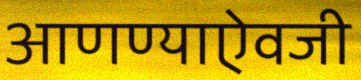
आणण्याऐवजी